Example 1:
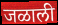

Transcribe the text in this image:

जळाली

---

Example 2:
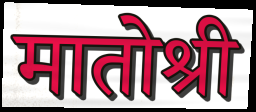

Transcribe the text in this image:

मातोश्री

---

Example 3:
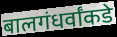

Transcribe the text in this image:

बालगंधर्वांकडे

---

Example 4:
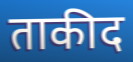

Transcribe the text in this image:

ताकीद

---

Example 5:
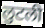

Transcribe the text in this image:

लुटली